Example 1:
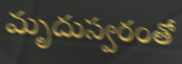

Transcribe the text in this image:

మృదుస్వరంతో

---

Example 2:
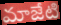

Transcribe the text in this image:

మాజేటి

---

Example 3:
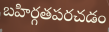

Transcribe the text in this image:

బహిర్గతపరచడం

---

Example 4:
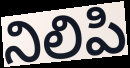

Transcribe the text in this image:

నిలిపి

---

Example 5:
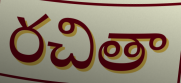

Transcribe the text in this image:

రచితా